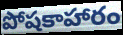
పోషకాహారం